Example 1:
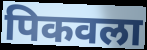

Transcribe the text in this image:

पिकवला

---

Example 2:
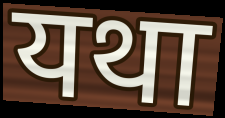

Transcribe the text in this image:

यथा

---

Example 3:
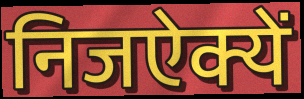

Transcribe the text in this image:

निजऐक्यें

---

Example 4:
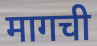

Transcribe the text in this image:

मागची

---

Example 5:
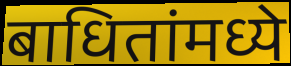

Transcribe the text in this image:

बाधितांमध्ये